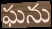
ఘను